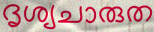
ദൃശ്യചാരുത